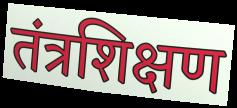
तंत्रशिक्षण